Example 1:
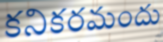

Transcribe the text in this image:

కనికరమందు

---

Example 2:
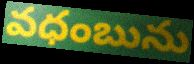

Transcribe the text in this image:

వధంబును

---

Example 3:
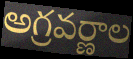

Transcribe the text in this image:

అగ్రవర్ణాల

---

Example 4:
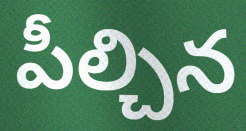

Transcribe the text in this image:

పీల్చిన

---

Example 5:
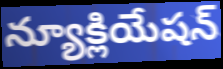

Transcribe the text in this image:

న్యూక్లియేషన్